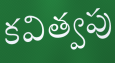
కవిత్వపు